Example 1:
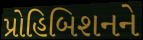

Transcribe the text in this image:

પ્રોહિબિશનને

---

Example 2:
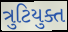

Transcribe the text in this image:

ત્રુટિયુક્ત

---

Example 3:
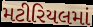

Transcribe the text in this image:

મટીરિયલમાં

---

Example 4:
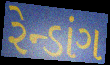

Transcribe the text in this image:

રેન્ડાંગ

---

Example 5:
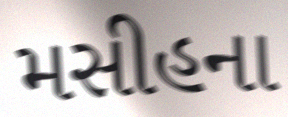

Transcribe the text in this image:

મસીહના